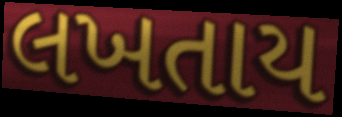
લખતાય